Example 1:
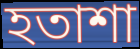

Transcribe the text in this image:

হতাশা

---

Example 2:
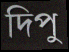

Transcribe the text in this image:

দিপু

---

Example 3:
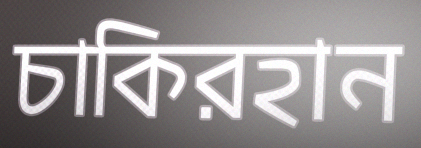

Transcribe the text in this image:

চাকিরহান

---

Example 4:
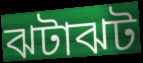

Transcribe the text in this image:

ঝটাঝট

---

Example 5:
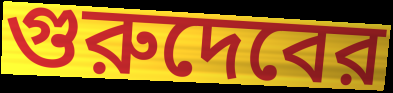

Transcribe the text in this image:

গুরুদেবের